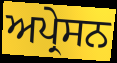
ਅਪ੍ਰੇਸਨ